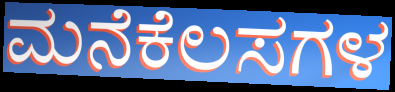
ಮನೆಕೆಲಸಗಳ